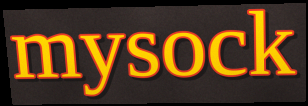
mysock